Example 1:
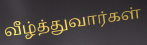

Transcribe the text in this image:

வீழ்த்துவார்கள்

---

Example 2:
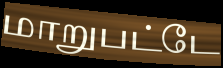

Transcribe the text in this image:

மாறுபட்டே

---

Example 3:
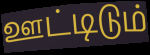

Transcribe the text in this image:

ஊட்டிடும்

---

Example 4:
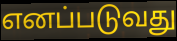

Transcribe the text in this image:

எனப்படுவது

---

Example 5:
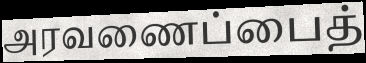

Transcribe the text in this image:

அரவணைப்பைத்